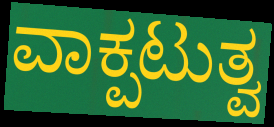
ವಾಕ್ಪಟುತ್ವ